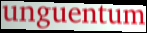
unguentum